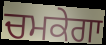
ਚਮਕੇਗਾ